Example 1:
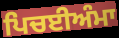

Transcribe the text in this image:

ਪਿਚਈਅੰਮਾ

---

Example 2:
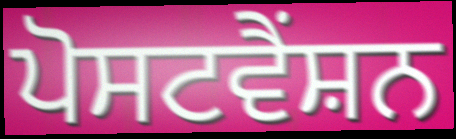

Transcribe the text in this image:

ਪੋਸਟਵੈਂਸ਼ਨ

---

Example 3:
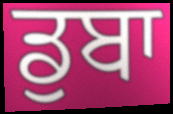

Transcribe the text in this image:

ਡੁਬਾ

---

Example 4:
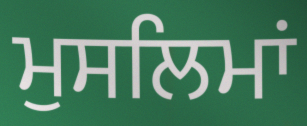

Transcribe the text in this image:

ਮੁਸਲਿਮਾਂ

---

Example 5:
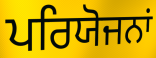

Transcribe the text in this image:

ਪਰਿਯੋਜਨਾਂ